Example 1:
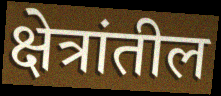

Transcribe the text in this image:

क्षेत्रांतील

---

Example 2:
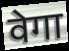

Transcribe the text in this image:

वेगा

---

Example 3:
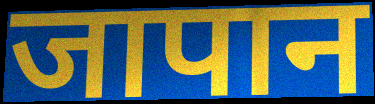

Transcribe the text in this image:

जापान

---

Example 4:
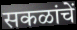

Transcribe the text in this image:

सकळांचें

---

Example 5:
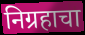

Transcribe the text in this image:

निग्रहाचा